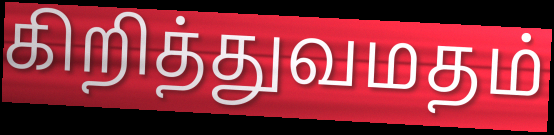
கிறித்துவமதம்